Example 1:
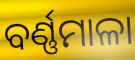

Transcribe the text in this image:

ବର୍ଣ୍ଣମାଳା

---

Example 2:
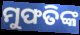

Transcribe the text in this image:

ମୁଫତିଙ୍କ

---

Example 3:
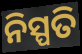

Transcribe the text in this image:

ନିସ୍ପତି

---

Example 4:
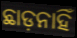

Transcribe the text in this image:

ଛାଡ଼ନାହିଁ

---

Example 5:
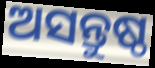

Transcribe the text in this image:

ଅସନ୍ତୁଷ୍ଠ